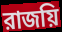
রাজয়ি